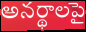
అనర్థాలపై